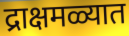
द्राक्षमळ्यात